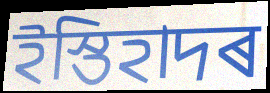
ইস্তিহাদৰ